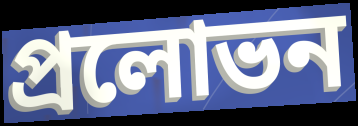
প্রলোভন